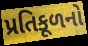
પ્રતિકૂળનો